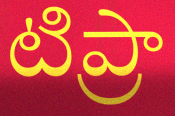
టిప్రా